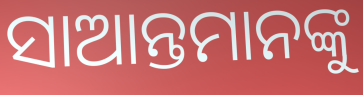
ସାଆନ୍ତମାନଙ୍କୁ